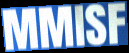
MMISF